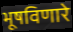
भूषविणारे